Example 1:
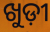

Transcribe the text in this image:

ଖୁଡ଼ୀ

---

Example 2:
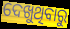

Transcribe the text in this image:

ଦେଖୁଥିବାରୁ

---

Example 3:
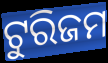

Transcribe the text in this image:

ଟୁରିଜମ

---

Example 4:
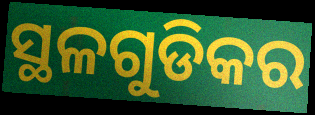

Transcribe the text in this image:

ସ୍ଥଳଗୁଡିକର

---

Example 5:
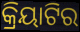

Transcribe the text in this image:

କ୍ରିୟାଟିର